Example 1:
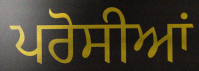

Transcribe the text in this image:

ਪਰੋਸੀਆਂ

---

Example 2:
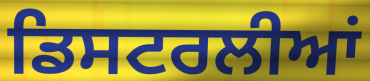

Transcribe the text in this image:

ਡਿਸਟਰਲੀਆਂ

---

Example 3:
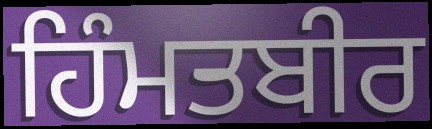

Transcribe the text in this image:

ਹਿੰਮਤਬੀਰ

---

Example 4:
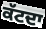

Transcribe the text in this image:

ਕੱਟਦਾ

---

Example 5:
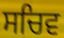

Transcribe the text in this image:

ਸਚਿਵ